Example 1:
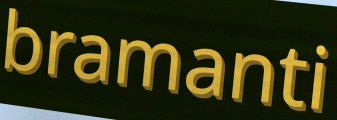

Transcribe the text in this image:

bramanti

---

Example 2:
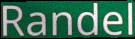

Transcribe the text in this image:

Randel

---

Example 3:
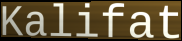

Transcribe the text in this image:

Kalifat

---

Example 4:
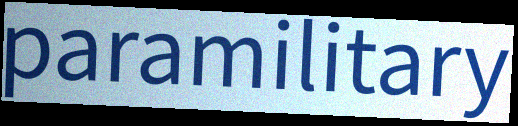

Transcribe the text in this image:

paramilitary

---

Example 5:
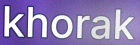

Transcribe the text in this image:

khorak